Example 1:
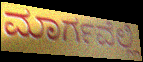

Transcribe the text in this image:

ಮಾರ್ಗವೆಲ್ಲಿ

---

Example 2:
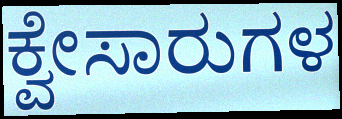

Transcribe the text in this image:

ಕ್ವೇಸಾರುಗಳ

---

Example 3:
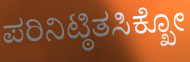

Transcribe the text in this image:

ಪರಿನಿಟ್ಠಿತಸಿಕ್ಖೋ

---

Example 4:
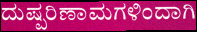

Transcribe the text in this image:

ದುಷ್ಪರಿಣಾಮಗಳಿಂದಾಗಿ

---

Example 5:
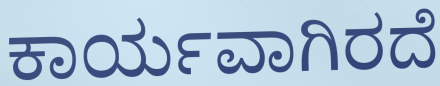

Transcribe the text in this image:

ಕಾರ್ಯವಾಗಿರದೆ